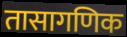
तासागणिक